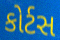
કોર્ટસ